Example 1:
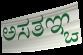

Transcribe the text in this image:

ಅಸತಞ್ಚ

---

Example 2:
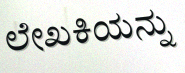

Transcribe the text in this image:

ಲೇಖಕಿಯನ್ನು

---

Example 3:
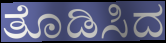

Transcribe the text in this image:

ತೊಡಿಸಿದ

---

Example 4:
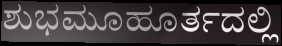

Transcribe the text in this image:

ಶುಭಮೂಹೂರ್ತದಲ್ಲಿ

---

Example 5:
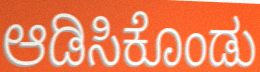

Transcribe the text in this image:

ಆಡಿಸಿಕೊಂಡು